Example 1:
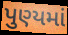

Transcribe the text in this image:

પુણ્યમાં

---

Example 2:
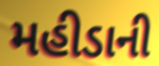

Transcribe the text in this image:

મહીડાની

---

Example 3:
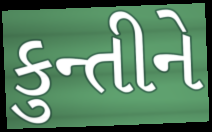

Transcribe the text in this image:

કુન્તીને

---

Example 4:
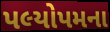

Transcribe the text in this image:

પલ્યોપમના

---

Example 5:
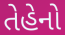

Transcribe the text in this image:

તેહેનો